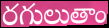
రగులుతాం